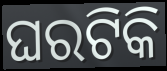
ଘରଟିକି